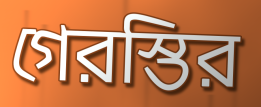
গেরস্তির